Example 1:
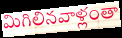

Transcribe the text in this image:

మిగిలినవాళ్లంతా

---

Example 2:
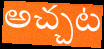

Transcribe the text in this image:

అచ్చట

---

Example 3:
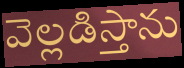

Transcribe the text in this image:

వెల్లడిస్తాను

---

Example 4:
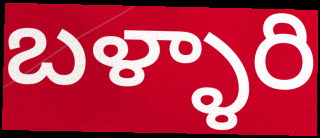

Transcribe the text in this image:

బళ్ళారి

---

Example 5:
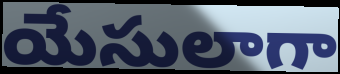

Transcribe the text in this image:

యేసులాగా